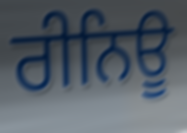
ਰੀਨਿਊ